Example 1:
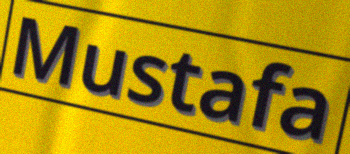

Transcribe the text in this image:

Mustafa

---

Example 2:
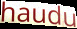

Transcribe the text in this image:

haudu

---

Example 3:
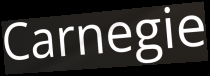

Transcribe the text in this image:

Carnegie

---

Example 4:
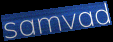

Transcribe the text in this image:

samvad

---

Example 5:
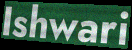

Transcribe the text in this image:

Ishwari